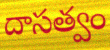
దాసత్వం